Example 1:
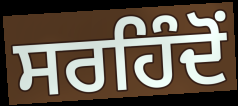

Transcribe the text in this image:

ਸਰਹਿੰਦੋਂ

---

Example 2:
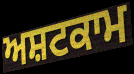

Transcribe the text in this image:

ਅਸ਼ਟਕਾਮ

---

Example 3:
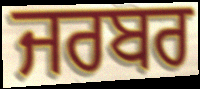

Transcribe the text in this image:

ਜਰਬਰ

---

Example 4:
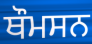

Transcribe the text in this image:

ਥੌਮਸਨ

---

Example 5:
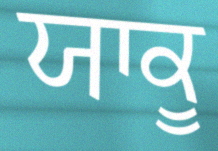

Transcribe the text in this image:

ਯਾਕੂ